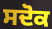
ਸਦੋਕ